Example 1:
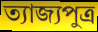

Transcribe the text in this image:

ত্যাজ্যপুত্র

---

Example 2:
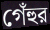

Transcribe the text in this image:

গেঁহুর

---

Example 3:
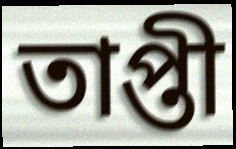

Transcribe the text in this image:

তাপ্তী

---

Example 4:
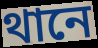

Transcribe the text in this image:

থানে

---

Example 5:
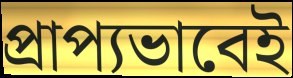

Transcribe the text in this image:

প্রাপ্যভাবেই